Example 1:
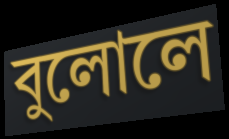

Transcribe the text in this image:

বুলোলে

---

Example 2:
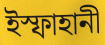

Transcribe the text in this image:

ইস্ফাহানী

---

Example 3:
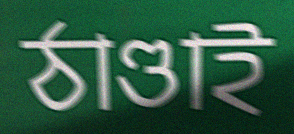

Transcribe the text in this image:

ঠাণ্ডাই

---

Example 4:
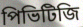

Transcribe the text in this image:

পিভিটিজি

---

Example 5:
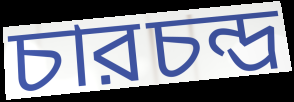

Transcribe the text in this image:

চারচন্দ্র